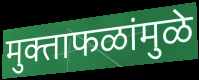
मुक्ताफळांमुळे